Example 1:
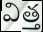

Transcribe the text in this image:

విత్త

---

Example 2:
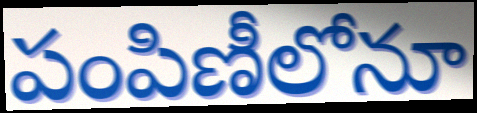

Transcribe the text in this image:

పంపిణీలోనూ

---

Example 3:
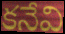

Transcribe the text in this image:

కనేవి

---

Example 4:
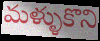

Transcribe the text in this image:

మళ్ళుకొని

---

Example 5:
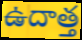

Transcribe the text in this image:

ఉదాత్త